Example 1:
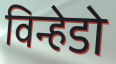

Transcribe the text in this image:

विन्हेडो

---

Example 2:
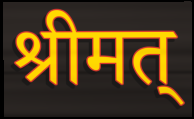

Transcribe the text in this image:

श्रीमत्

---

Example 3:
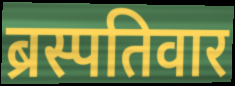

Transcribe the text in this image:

ब्रस्पतिवार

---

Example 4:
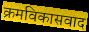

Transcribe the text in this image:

क्रमविकासवाद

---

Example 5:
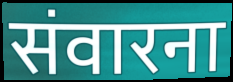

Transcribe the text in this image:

संवारना